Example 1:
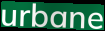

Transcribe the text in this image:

urbane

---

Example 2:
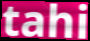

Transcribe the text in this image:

tahi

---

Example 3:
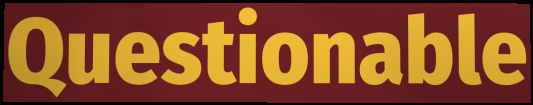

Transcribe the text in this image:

Questionable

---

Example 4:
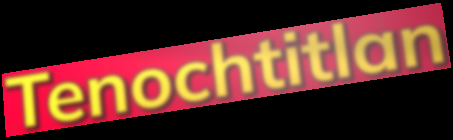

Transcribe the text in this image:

Tenochtitlan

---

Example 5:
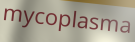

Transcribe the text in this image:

mycoplasma